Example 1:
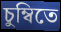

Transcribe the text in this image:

চুম্বিতে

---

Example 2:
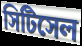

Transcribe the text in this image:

সিটিসেল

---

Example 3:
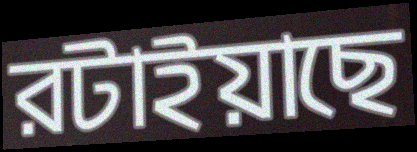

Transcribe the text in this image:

রটাইয়াছে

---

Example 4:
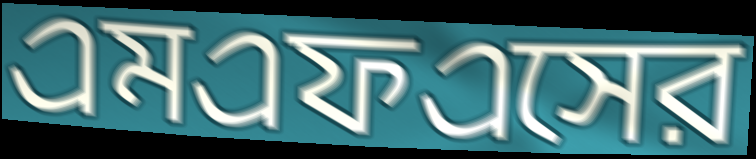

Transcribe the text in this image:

এমএফএসের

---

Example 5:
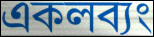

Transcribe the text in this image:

একলব্যং